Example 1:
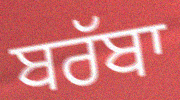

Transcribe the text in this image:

ਬਰੱਬਾ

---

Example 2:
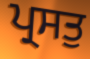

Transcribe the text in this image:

ਪ੍ਰਸਤੁ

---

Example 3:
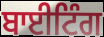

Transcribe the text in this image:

ਬਾਈਟਿੰਗ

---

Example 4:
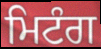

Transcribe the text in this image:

ਮਿਟੰਗ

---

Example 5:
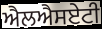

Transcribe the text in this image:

ਐਲਐਸਏਟੀ